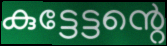
കുട്ടേട്ടന്റെ